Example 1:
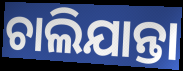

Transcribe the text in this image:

ଚାଲିଯାନ୍ତା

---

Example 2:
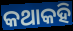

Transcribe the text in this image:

କଥାକହି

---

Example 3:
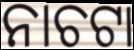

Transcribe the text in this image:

ନାଚଟା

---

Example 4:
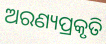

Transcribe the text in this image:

ଅରଣ୍ୟପ୍ରକୃତି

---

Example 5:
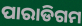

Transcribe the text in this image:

ପାରାଡିଗମ